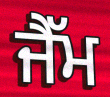
ਜੈੱਮ